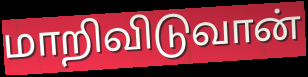
மாறிவிடுவான்